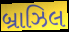
બ્રાઝિલ